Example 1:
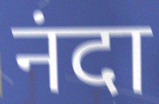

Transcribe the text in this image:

नंदा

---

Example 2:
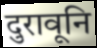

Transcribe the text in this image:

दुरावूनि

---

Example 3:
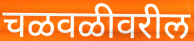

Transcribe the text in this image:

चळवळीवरील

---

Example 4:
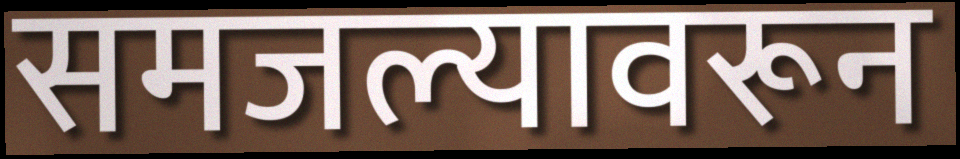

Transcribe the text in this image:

समजल्यावरून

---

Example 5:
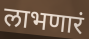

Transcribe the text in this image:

लाभणारं